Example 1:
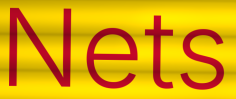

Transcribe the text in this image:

Nets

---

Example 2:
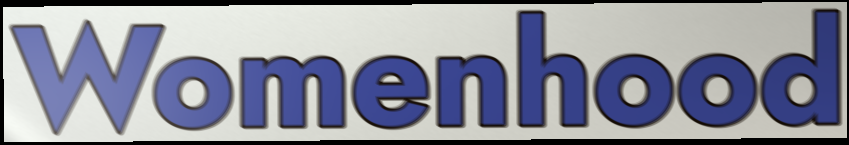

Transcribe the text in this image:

Womenhood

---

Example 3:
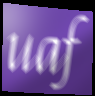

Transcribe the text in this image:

uaf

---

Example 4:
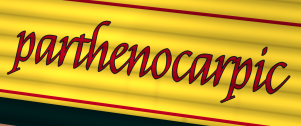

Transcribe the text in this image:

parthenocarpic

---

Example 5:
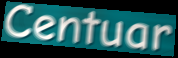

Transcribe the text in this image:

Centuar